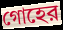
গোহের